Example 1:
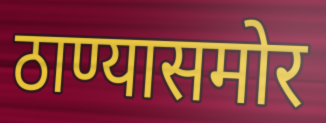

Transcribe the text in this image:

ठाण्यासमोर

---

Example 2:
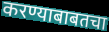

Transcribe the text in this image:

करण्याबाबतचा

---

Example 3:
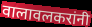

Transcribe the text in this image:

वालावलकरांनी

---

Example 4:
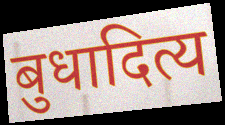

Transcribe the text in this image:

बुधादित्य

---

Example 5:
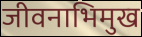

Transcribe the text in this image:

जीवनाभिमुख